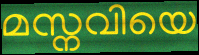
മസ്നവിയെ